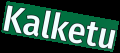
Kalketu